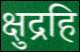
क्षुद्रहि